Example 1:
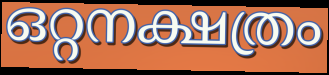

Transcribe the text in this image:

ഒറ്റനക്ഷത്രം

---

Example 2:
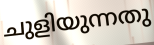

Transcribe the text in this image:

ചുളിയുന്നതു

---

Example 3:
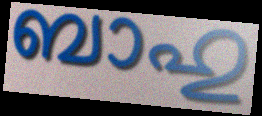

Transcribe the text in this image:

ബാഹു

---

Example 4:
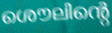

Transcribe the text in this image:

ശൌലിന്റെ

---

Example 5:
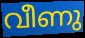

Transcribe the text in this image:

വീണു